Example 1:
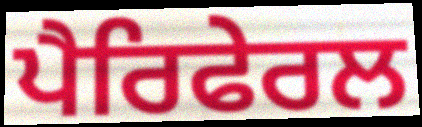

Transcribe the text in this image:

ਪੈਰਿਫੇਰਲ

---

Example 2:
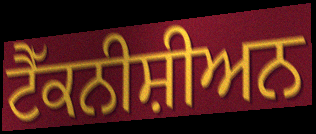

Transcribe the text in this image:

ਟੈੱਕਨੀਸ਼ੀਅਨ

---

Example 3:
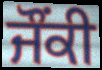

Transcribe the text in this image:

ਜੌਂਕੀ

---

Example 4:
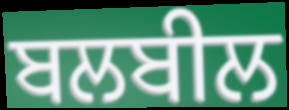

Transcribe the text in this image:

ਬਲਬੀਲ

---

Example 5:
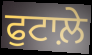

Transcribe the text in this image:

ਫੁਟਾਲ਼ੇ